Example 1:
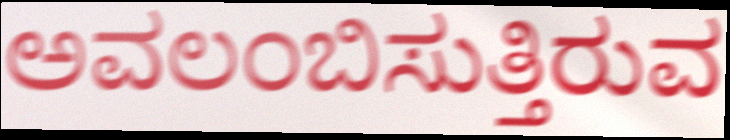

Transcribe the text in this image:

ಅವಲಂಬಿಸುತ್ತಿರುವ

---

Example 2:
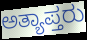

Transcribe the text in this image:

ಅತ್ಯಾಪ್ತರು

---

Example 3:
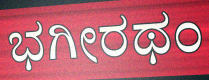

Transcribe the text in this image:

ಭಗೀರಥಂ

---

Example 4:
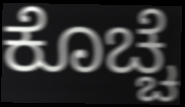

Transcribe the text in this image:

ಕೊಚ್ಚೆ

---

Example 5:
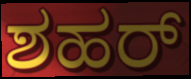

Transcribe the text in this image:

ಶಹರ್